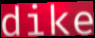
dike